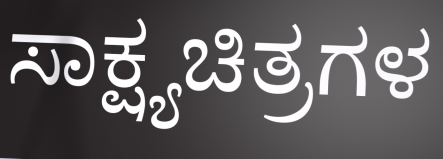
ಸಾಕ್ಷ್ಯಚಿತ್ರಗಳ